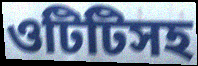
ওটিটিসহ